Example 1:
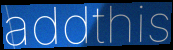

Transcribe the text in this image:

addthis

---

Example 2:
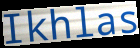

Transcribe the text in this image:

Ikhlas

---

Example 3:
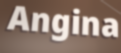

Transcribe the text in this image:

Angina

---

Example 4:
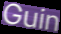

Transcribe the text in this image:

Guin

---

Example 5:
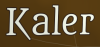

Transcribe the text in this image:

Kaler